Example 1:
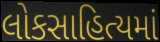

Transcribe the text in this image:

લોકસાહિત્યમાં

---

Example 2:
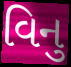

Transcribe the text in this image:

વિનુ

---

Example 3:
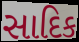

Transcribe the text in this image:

સાદિક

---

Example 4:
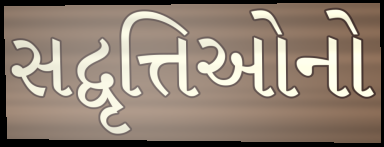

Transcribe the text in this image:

સદ્વૃત્તિઓનો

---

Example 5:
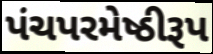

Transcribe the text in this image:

પંચપરમેષ્ઠીરૂપ